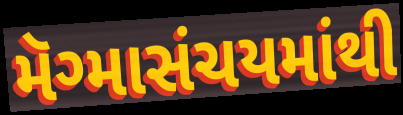
મૅગ્માસંચયમાંથી